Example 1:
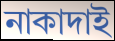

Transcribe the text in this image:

নাকাদাই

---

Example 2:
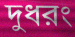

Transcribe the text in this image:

দুধরং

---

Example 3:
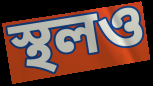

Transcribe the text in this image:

স্থলও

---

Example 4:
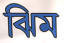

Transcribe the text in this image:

ঝিম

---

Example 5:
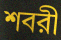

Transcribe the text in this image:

শবরী